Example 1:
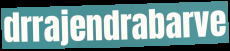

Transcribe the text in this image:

drrajendrabarve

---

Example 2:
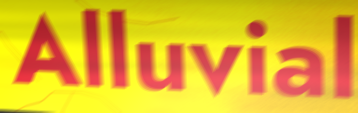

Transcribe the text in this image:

Alluvial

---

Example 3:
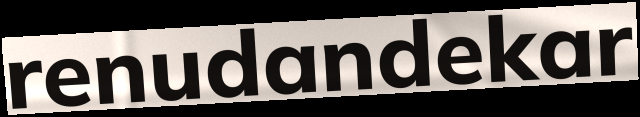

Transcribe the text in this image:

renudandekar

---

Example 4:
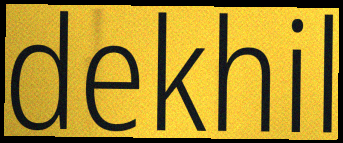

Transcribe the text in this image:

dekhil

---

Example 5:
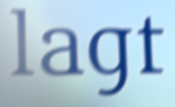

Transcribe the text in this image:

lagt